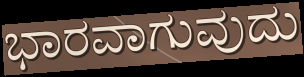
ಭಾರವಾಗುವುದು